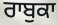
ਰਾਬੁਕਾ